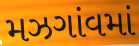
મઝગાંવમાં